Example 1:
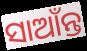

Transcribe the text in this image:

ସାଆଁନ୍ତ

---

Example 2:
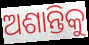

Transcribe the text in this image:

ଅଶାନ୍ତିକୁ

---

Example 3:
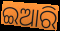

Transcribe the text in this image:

ଇଆରି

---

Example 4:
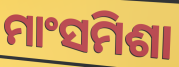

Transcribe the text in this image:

ମାଂସମିଶା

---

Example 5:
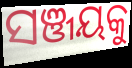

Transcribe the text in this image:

ସଞ୍ଜୟକୁ